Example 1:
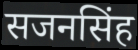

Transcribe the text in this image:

सजनसिंह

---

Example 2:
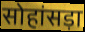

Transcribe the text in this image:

सोहांसड़ा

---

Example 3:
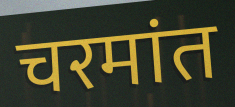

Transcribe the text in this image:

चरमांत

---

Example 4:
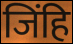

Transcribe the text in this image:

जिंहि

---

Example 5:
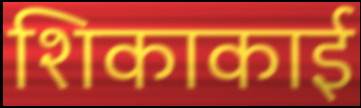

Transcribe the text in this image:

शिकाकाई